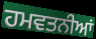
ਹਮਵਤਨੀਆਂ